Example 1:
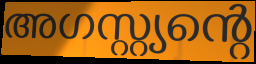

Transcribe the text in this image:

അഗസ്റ്റ്യന്റെ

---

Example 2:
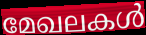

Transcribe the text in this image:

മേഖലകൾ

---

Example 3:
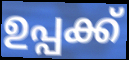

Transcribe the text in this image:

ഉപ്പക്ക്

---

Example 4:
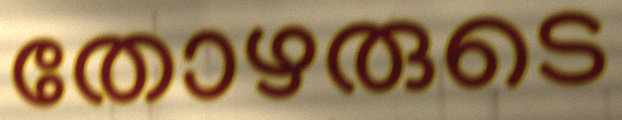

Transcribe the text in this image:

തോഴരുടെ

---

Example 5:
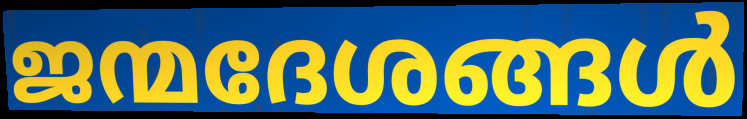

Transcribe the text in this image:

ജന്മദേശങ്ങൾ